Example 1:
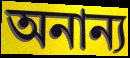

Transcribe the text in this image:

অনান্য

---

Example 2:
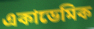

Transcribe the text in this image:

একাডেমিক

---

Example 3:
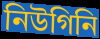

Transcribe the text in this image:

নিউগিনি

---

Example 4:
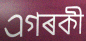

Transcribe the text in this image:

এগৰকী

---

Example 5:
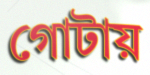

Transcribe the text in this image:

গোটায়